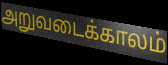
அறுவடைக்காலம்